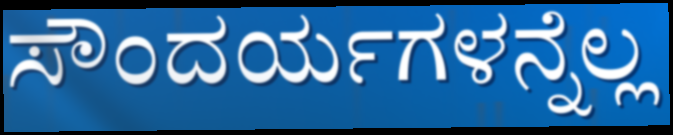
ಸೌಂದರ್ಯಗಳನ್ನೆಲ್ಲ